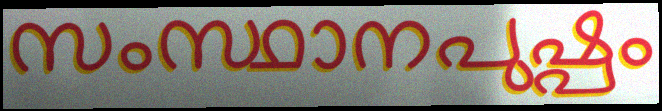
സംസ്ഥാനപുഷ്പം